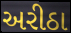
અરીઠા